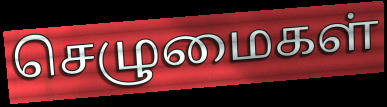
செழுமைகள்